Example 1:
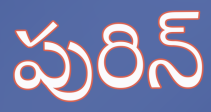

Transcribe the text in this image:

పురిన్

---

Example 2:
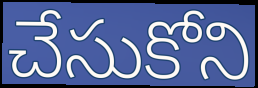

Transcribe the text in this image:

చేసుకోని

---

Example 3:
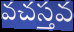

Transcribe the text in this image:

వచస్తవ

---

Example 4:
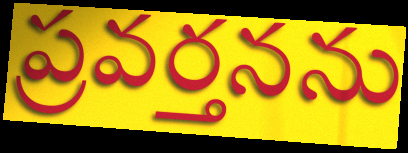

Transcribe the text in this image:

ప్రవర్తనను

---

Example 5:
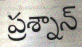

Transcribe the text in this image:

ప్రశ్నాన్